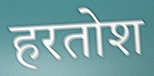
हरतोश